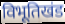
विभूतिखंड